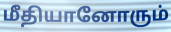
மீதியானோரும்